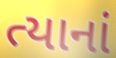
ત્યાનાં